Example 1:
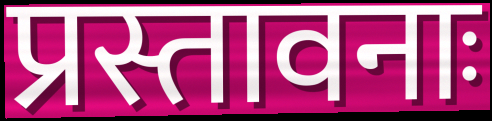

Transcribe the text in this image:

प्रस्तावनाः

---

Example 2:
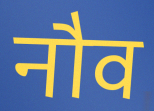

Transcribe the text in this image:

नौव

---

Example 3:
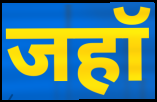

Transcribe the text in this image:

जहॉ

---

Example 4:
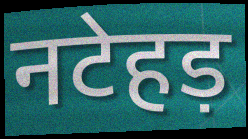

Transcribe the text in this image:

नटेहड़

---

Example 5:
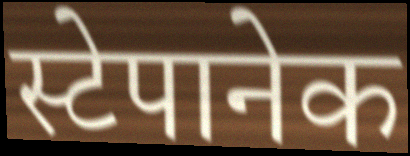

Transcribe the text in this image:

स्टेपानेक